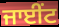
ਜਾਈਂਟ